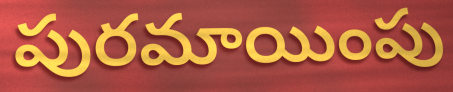
పురమాయింపు